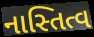
નાસ્તિત્વ